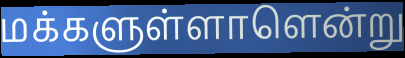
மக்களுள்ளாளென்று